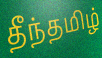
தீந்தமிழ்